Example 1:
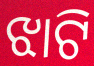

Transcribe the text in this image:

ଝାଟି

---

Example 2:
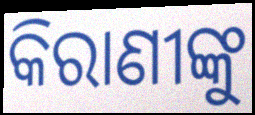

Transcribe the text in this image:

କିରାଣୀଙ୍କୁ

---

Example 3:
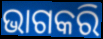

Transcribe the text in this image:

ଭାଗକରି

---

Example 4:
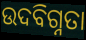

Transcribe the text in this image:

ଉଦବିଗ୍ନତା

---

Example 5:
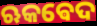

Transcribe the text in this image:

ଋକଵେଦ